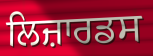
ਲਿਜ਼ਾਰਡਸ